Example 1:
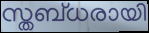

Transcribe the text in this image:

സ്തബ്ധരായി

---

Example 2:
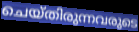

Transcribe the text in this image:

ചെയ്തിരുന്നവരുടെ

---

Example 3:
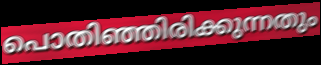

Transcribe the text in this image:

പൊതിഞ്ഞിരിക്കുന്നതും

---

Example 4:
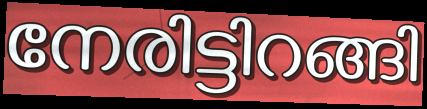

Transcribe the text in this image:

നേരിട്ടിറങ്ങി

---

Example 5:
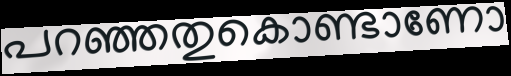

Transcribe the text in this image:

പറഞ്ഞതുകൊണ്ടാണോ